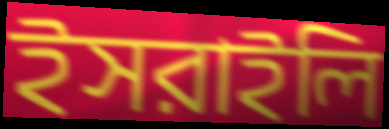
ইসরাইলি